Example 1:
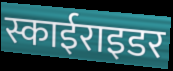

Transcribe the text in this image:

स्काईराइडर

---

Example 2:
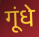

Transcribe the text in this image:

गूंधे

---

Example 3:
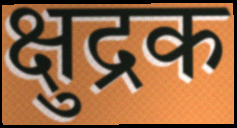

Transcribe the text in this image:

क्षुद्रक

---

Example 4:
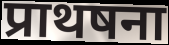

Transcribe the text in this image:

प्राथषना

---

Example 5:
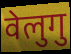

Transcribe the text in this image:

वेलुगु